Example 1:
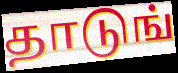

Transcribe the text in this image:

தாடுங்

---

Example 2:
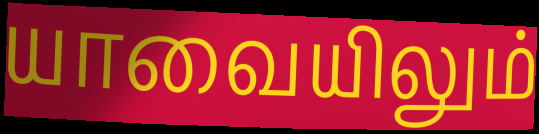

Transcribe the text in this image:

யாவையிலும்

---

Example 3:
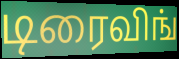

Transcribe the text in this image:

டிரைவிங்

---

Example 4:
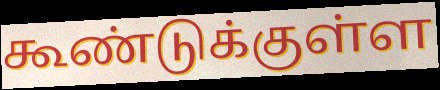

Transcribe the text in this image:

கூண்டுக்குள்ள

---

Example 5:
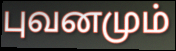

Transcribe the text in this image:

புவனமும்